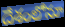
దేశంలోనూ